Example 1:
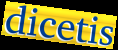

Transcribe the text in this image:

dicetis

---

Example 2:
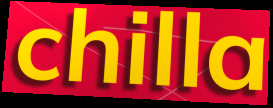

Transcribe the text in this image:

chilla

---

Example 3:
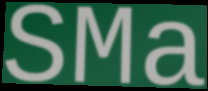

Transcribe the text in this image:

SMa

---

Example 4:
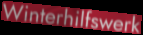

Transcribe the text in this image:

Winterhilfswerk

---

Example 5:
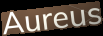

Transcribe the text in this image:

Aureus